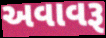
અવાવરૂ